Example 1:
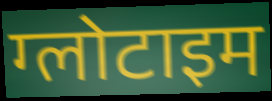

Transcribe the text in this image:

ग्लोटाइम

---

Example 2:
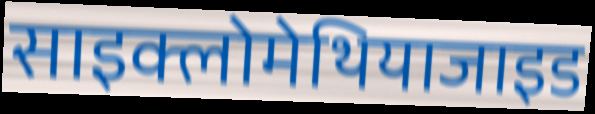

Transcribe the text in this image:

साइक्लोमेथियाजाइड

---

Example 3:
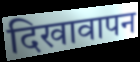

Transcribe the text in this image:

दिखावापन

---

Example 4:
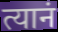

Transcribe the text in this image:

त्यानं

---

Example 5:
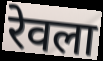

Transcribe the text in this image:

रेवला